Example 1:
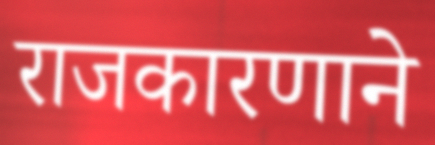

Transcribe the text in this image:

राजकारणाने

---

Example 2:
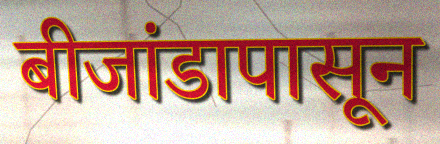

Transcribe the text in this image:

बीजांडापासून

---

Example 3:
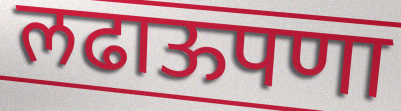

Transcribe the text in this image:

लढाऊपणा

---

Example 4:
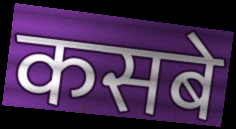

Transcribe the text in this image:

कसबे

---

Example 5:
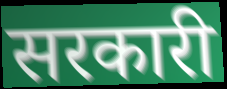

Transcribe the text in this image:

सरकारी